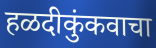
हळदीकुंकवाचा